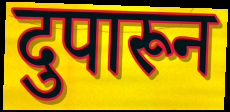
दुपारून